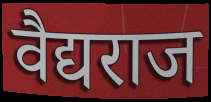
वैद्यराज